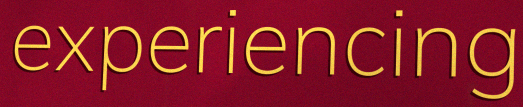
experiencing